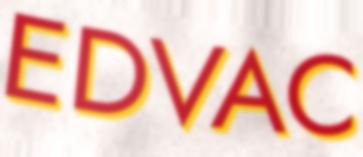
EDVAC